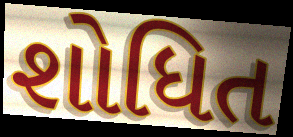
શોધિત